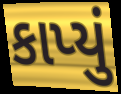
કાપ્યું